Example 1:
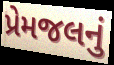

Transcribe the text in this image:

પ્રેમજલનું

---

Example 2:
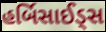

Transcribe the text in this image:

હર્બિસાઈડ્સ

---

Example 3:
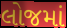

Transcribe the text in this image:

લોજમાં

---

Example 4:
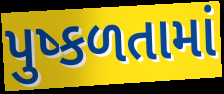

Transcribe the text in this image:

પુષ્કળતામાં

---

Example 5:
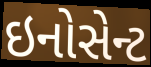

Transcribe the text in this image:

ઇનોસેન્ટ